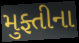
મુફ્તીના